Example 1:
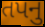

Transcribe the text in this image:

તપનુ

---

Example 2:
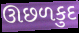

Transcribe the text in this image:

ઊછળકુદ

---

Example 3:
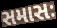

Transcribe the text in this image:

સમાસઃ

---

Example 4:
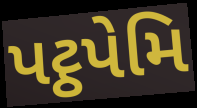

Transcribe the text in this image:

પટ્ઠપેમિ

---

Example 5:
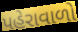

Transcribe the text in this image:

પહેરાવાળો